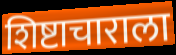
शिष्टाचाराला